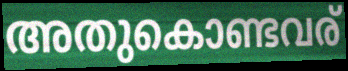
അതുകൊണ്ടവര്